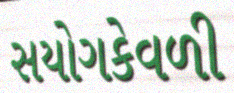
સયોગકેવળી